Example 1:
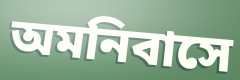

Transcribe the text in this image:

অমনিবাসে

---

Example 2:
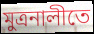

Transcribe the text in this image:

মুত্রনালীতে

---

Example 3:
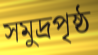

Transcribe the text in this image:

সমুদ্রপৃষ্ঠ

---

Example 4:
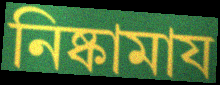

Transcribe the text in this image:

নিষ্কামায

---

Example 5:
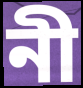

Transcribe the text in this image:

নী